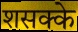
शसक्के